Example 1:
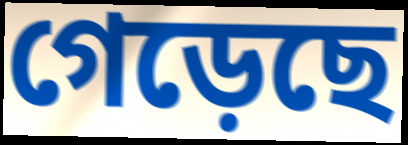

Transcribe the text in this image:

গেড়েছে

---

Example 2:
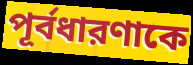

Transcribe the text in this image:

পূর্বধারণাকে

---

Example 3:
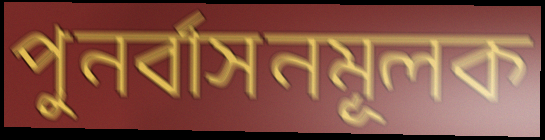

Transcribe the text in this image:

পুনর্বাসনমূলক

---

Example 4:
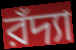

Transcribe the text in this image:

রঁদ্যা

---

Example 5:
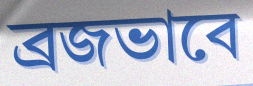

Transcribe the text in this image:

ব্রজভাবে